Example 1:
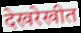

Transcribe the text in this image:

देखरेखीत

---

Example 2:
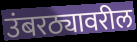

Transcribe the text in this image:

उंबरठ्यावरील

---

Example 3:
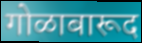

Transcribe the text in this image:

गोळाबारूद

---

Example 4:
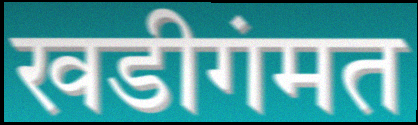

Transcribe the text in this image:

खडीगंमत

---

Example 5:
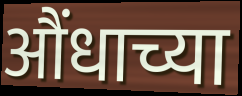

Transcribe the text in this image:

औंधाच्या